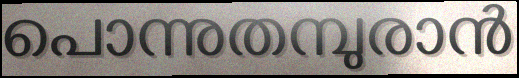
പൊന്നുതമ്പുരാൻ